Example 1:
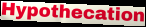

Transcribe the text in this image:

Hypothecation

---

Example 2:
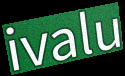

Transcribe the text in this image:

ivalu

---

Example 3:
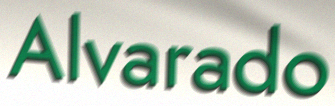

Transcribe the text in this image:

Alvarado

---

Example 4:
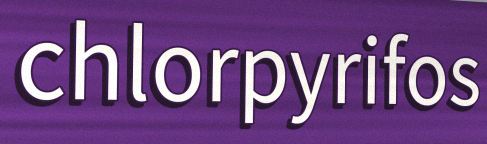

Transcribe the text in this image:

chlorpyrifos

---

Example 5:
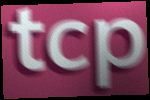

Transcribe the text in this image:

tcp